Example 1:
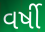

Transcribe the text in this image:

વર્ષી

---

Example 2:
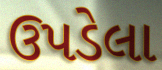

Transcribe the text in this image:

ઉપડેલા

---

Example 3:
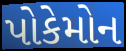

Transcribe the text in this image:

પોકેમોન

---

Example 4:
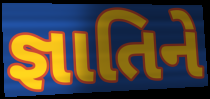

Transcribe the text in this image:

જ્ઞાતિને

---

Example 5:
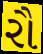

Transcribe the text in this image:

રૌ